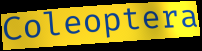
Coleoptera